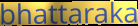
bhattaraka